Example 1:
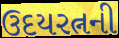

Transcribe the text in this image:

ઉદયરત્નની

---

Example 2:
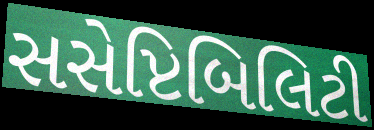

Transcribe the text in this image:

સસેપ્ટિબિલિટી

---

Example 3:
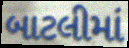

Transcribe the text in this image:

બાટલીમાં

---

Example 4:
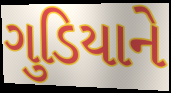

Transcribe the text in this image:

ગુડિયાને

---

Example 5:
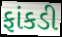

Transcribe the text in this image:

ફાંકડી